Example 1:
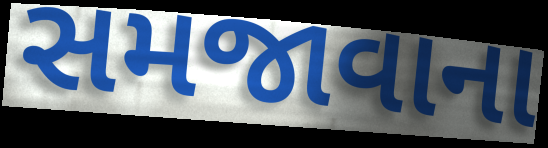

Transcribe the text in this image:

સમજાવાના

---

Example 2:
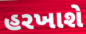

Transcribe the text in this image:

હરખાશે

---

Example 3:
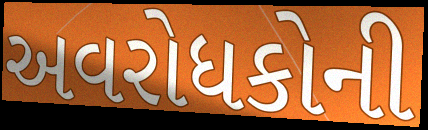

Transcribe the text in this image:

અવરોધકોની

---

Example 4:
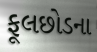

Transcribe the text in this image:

ફૂલછોડના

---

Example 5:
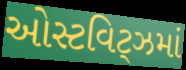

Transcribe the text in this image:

ઓસ્ટવિટ્ઝમાં